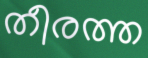
തീരത്ത